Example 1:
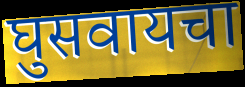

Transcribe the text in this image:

घुसवायचा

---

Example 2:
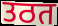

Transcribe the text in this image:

उठत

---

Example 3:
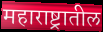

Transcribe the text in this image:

महाराष्ट्रातील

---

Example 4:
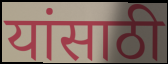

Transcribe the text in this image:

यांसाठी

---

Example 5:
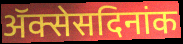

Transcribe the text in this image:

ॲक्सेसदिनांक